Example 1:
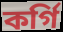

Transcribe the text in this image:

কর্গি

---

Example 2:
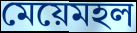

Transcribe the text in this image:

মেয়েমহল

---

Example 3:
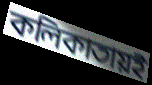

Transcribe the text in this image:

কলিকাতায়ই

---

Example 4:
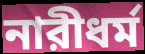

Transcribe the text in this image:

নারীধর্ম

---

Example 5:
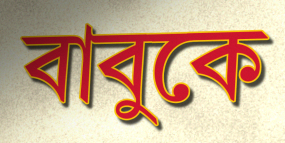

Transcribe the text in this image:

বাবুকে